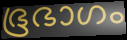
ഭൂഭാഗം